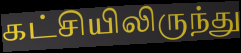
கட்சியிலிருந்து